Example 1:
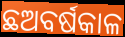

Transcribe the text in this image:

ଛଅବର୍ଷକାଳ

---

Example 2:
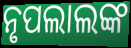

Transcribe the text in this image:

ନୃପଲାଲଙ୍କ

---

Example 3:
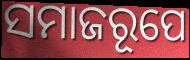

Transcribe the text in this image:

ସମାଜରୂପେ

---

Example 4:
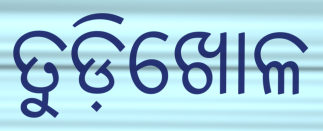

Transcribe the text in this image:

ତୁଡ଼ିଖୋଳ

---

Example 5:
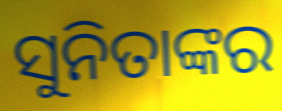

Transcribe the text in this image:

ସୁନିତାଙ୍କର